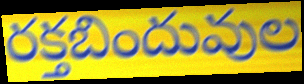
రక్తబిందువుల